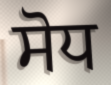
ਸੋਧ